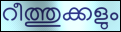
റീത്തുക്കളും